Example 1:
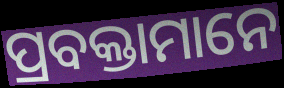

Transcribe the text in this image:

ପ୍ରବକ୍ତାମାନେ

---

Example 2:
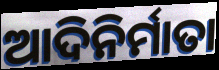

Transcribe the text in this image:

ଆଦିନିର୍ମାତା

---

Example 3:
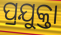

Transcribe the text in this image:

ପ୍ରଯୁକ୍ତା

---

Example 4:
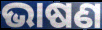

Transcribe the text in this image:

ଭାଷଣ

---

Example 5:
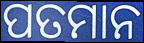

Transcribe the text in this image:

ପତମାନ